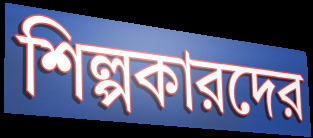
শিল্পকারদের